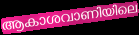
ആകാശവാണിയിലെ